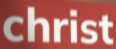
christ